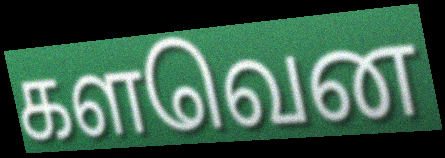
களவென